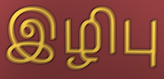
இழிபு